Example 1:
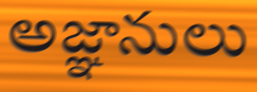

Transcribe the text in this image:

అజ్ఞానులు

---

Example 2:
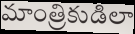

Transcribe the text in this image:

మాంత్రికుడిలా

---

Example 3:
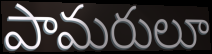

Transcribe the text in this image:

పామరులూ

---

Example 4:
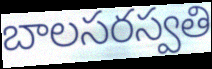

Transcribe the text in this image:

బాలసరస్వతి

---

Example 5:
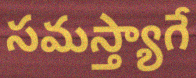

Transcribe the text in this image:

సమస్త్యాగే